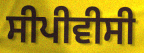
ਸੀਪੀਵੀਸੀ